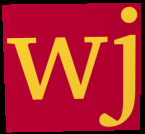
wj